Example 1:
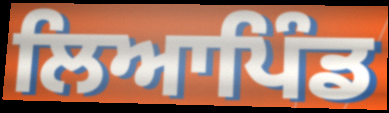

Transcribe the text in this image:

ਲਿਆਪਿੰਡ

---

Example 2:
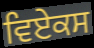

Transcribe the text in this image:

ਵਿਏਕਸ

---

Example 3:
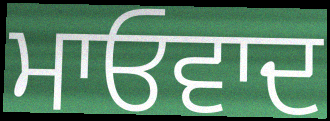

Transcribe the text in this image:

ਮਾਓਵਾਦ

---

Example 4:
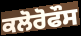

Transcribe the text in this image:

ਕਲੋਰੋਫੌਸ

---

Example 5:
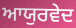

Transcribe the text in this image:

ਆਯੁਰਵੇਦ